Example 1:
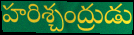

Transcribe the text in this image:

హరిశ్చంద్రుడు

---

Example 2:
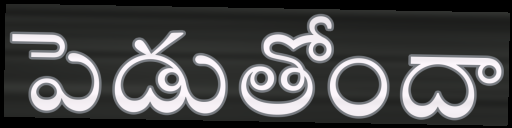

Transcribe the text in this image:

పెడుతోందా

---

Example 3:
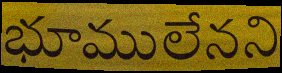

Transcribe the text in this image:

భూములేనని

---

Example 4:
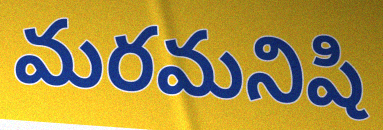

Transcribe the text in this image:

మరమనిషి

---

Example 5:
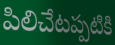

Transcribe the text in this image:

పిలిచేటప్పటికి